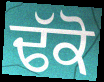
ਢੱਕੋ